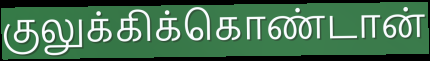
குலுக்கிக்கொண்டான்